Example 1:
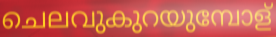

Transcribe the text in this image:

ചെലവുകുറയുമ്പോള്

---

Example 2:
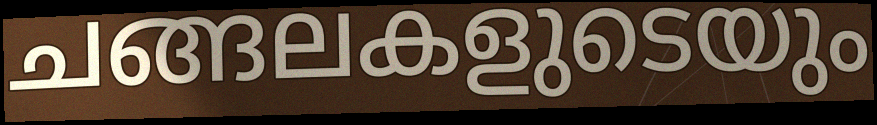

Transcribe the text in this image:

ചങ്ങലകളുടെയും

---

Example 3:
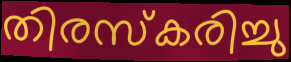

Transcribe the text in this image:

തിരസ്കരിച്ചു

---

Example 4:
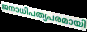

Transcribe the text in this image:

ജനാധിപത്യപരമായി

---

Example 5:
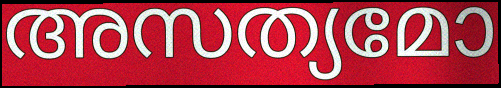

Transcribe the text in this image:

അസത്യമോ